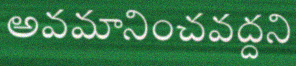
అవమానించవద్దని